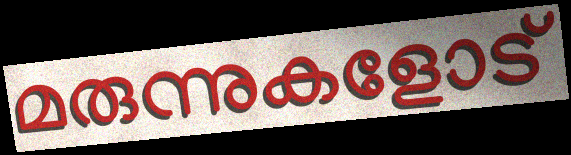
മരുന്നുകളോട്